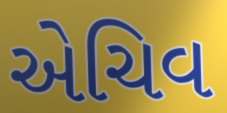
એચિવ